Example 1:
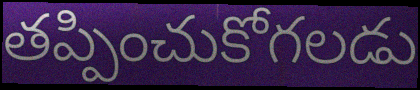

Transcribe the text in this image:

తప్పించుకోగలడు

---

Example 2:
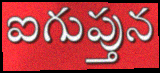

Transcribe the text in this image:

ఐగుప్తున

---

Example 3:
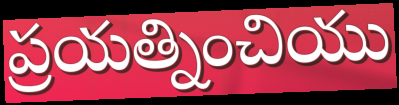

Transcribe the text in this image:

ప్రయత్నించియు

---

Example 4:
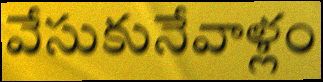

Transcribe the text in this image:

వేసుకునేవాళ్లం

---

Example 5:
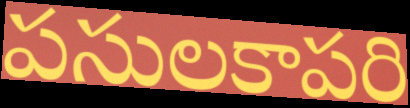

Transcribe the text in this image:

పసులకాపరి